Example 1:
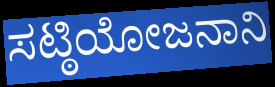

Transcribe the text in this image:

ಸಟ್ಠಿಯೋಜನಾನಿ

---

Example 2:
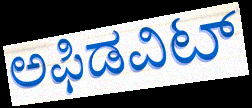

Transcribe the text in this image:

ಅಫಿಡವಿಟ್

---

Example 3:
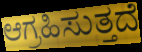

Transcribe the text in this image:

ಆಗ್ರಹಿಸುತ್ತದೆ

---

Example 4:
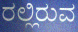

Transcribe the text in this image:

ರಲ್ಲಿರುವ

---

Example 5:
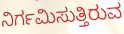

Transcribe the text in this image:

ನಿರ್ಗಮಿಸುತ್ತಿರುವ